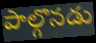
పాల్గొనడు